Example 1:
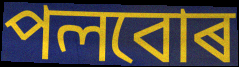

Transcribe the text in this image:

পলবোৰ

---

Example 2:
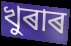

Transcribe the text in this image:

খুৰাৰ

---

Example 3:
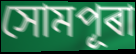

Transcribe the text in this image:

সোমপূৰা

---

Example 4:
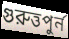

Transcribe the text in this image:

গুৰুত্তপুৰ্ন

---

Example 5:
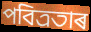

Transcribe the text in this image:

পবিত্ৰতাৰ